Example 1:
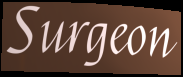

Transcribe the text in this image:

Surgeon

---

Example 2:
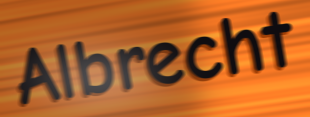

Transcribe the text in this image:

Albrecht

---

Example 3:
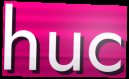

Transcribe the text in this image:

huc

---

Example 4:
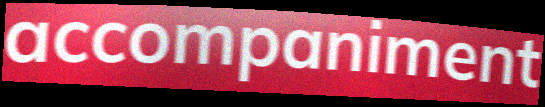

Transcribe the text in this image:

accompaniment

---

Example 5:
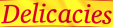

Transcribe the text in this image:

Delicacies